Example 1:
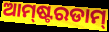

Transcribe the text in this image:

ଆମ୍‍ଷ୍ଟରଡାମ୍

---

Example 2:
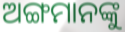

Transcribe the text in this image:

ଅଙ୍ଗମାନଙ୍କୁ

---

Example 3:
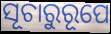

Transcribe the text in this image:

ସୂଚାରୁରୂପେ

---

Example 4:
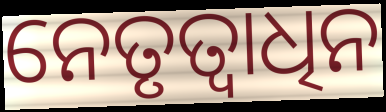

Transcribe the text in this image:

ନେତୃତ୍ୱାଧିନ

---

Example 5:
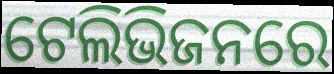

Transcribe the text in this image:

ଟେଲିଭିଜନରେ